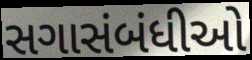
સગાસંબંધીઓ